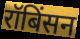
रॉबिंसन